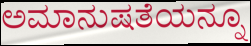
ಅಮಾನುಷತೆಯನ್ನೂ